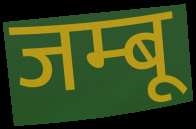
जम्बू